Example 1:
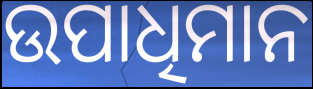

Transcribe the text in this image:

ଉପାଧିମାନ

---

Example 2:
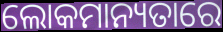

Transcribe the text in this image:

ଲୋକମାନ୍ୟତାରେ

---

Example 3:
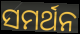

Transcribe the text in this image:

ସମର୍ଥନ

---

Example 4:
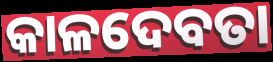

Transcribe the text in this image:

କାଳଦେବତା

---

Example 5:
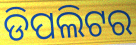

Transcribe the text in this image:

ଡିପଲିଟର